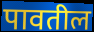
पावतील